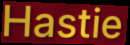
Hastie